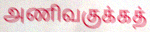
அணிவகுக்கத்